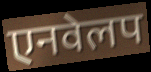
एनवेलप